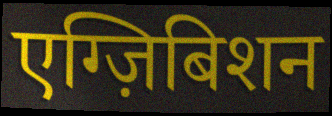
एग्ज़िबिशन